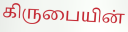
கிருபையின்